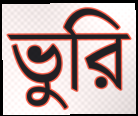
ভুরি